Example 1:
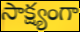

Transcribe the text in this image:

సాక్ష్యంగా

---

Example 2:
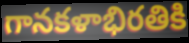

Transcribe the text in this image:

గానకళాభిరతికి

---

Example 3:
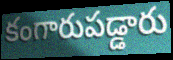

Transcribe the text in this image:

కంగారుపడ్డారు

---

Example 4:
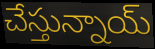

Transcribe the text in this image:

చేస్తున్నాయ్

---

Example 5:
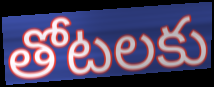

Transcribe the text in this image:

తోటలకు